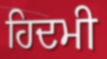
ਹਿਦਮੀ